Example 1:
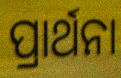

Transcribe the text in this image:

ପ୍ରାର୍ଥନା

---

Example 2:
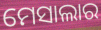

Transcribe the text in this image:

ମେସାଲାର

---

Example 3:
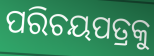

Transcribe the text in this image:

ପରିଚୟପତ୍ରକୁ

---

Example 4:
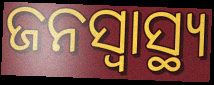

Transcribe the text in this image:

ଜନସ୍ବାସ୍ଥ୍ୟ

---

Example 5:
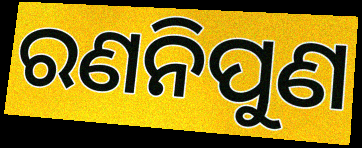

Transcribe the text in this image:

ରଣନିପୁଣ